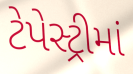
ટેપેસ્ટ્રીમાં